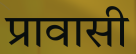
प्रावासी